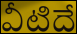
వీటిదే